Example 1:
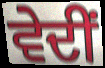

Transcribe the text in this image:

ਵੇਦੀਂ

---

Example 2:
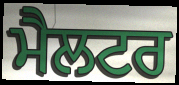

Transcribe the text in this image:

ਮੈਲਟਰ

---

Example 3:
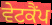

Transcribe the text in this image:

ਵੇਟਕੈਂਪ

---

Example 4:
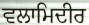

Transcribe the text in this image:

ਵਲਾਮਿਦੀਰ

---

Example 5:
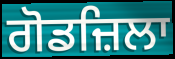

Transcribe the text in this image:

ਗੋਡਜ਼ਿਲਾ